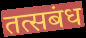
तत्सबंध